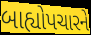
બાહ્યોપચારને